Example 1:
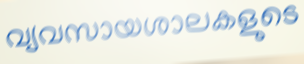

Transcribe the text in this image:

വ്യവസായശാലകളുടെ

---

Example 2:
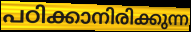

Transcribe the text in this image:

പഠിക്കാനിരിക്കുന്ന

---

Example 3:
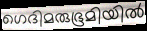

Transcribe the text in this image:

ഗെദിമരുഭൂമിയിൽ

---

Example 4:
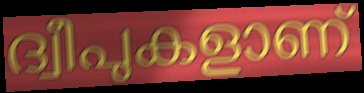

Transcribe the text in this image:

ദ്വീപുകളാണ്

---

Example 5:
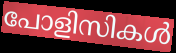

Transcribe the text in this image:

പോളിസികൾ